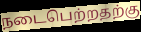
நடைபெற்றதற்கு